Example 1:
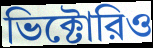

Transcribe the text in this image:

ভিক্টোরিও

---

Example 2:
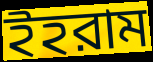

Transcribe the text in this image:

ইহরাম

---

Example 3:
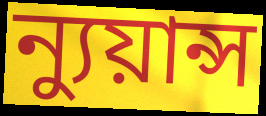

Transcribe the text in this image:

ন্যুয়ান্স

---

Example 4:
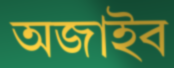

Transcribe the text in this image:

অজাইব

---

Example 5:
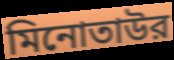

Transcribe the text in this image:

মিনোতাউর